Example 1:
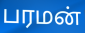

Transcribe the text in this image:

பரமன்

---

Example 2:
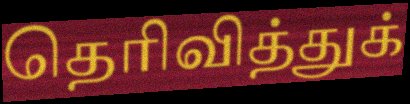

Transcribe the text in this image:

தெரிவித்துக்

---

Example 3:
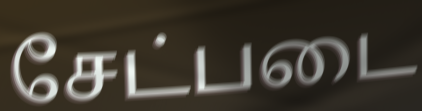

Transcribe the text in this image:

சேட்படை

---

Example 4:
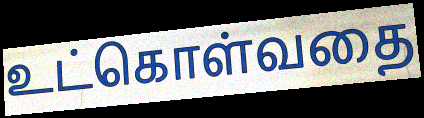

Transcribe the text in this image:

உட்கொள்வதை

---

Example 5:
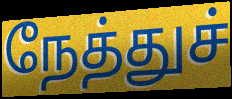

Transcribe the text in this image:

நேத்துச்